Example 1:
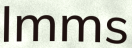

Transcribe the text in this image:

Imms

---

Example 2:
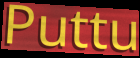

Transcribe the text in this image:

Puttu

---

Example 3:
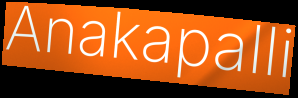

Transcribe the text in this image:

Anakapalli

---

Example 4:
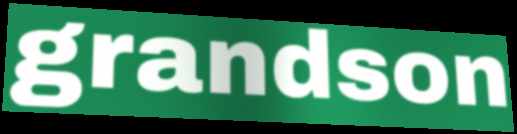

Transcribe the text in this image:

grandson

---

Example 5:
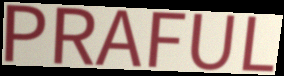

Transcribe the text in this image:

PRAFUL